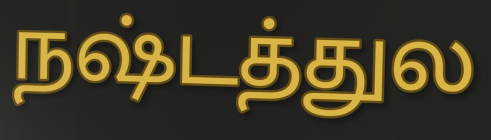
நஷ்டத்துல